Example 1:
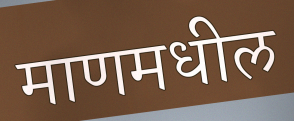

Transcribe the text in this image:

माणमधील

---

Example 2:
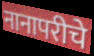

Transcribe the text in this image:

नानापरीचे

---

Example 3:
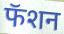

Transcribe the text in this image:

फॅशन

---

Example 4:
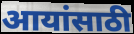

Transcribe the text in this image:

आयांसाठी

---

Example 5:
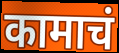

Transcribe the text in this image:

कामाचं